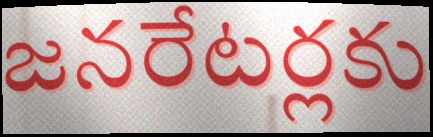
జనరేటర్లకు